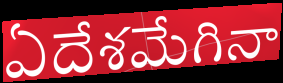
ఏదేశమేగినా